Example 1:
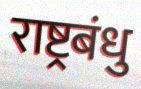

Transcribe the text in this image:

राष्ट्रबंधु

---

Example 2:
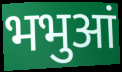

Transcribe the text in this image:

भभुआं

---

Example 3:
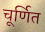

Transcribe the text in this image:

चूर्णित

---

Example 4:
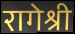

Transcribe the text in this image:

रागेश्री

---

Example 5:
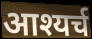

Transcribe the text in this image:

आश्यर्च